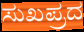
ಸುಖಪ್ರದ